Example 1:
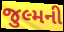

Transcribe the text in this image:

જુલ્મની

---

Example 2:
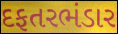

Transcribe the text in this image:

દફતરભંડાર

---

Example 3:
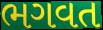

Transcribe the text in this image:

ભગવત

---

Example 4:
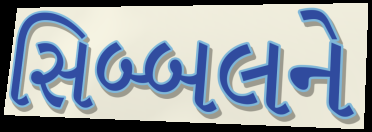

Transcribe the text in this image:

સિબ્બલને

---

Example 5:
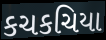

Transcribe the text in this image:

કચકચિયા